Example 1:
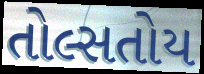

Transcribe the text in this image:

તોલ્સતોય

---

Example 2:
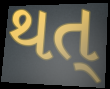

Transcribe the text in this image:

થત્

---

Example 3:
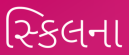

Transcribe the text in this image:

સ્કિલના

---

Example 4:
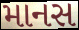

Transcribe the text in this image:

માનસ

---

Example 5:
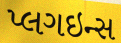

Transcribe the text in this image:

પ્લગઇન્સ